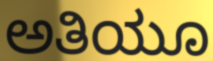
ಅತಿಯೂ